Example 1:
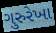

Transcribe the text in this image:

ગુરુરેખા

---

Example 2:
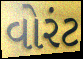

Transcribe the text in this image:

વોરંટ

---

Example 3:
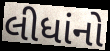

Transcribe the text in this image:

લીધાંનો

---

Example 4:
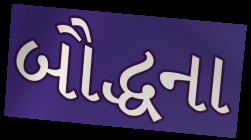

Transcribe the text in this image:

બૌદ્ધના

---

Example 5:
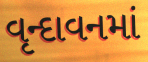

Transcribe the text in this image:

વૃન્દાવનમાં